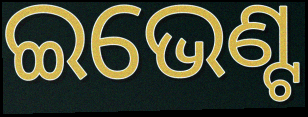
ଇଭେଣ୍ଟ